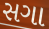
સગા